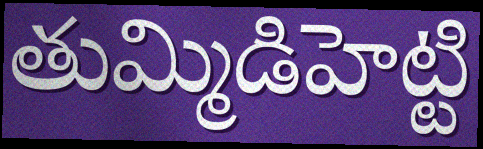
తుమ్మిడిహెట్టి